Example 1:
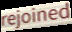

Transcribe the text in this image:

rejoined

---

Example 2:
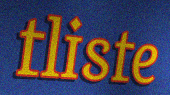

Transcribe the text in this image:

tliste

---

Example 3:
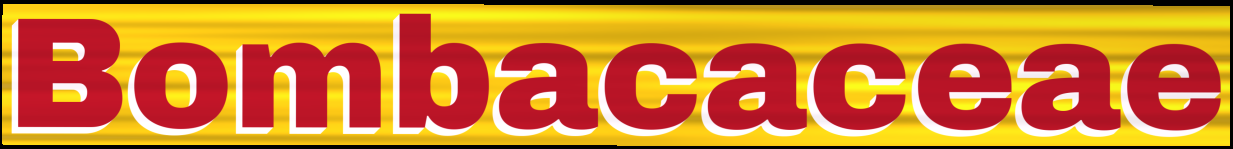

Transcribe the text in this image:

Bombacaceae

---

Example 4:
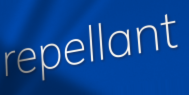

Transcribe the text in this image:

repellant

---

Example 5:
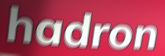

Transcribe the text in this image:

hadron